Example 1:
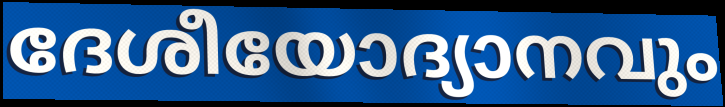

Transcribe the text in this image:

ദേശീയോദ്യാനവും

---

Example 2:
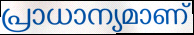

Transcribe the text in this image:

പ്രാധാന്യമാണ്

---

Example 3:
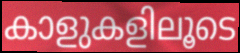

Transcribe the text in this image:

കാളുകളിലൂടെ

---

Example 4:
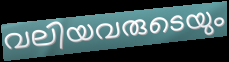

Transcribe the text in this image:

വലിയവരുടെയും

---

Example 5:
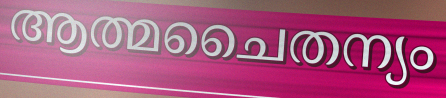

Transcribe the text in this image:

ആത്മചൈതന്യം